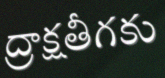
ద్రాక్షతీగకు